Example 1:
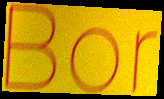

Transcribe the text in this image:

Bor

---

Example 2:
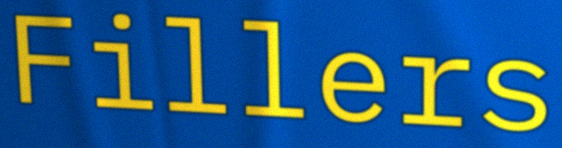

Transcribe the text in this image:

Fillers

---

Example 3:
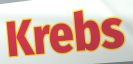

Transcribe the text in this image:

Krebs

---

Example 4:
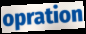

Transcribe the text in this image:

opration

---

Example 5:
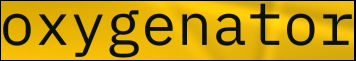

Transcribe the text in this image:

oxygenator